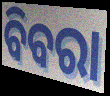
ବିବରା